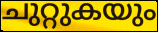
ചുറ്റുകയും